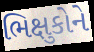
ભિક્ષુકોને